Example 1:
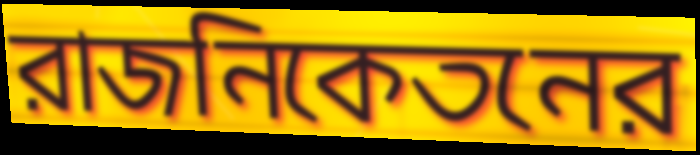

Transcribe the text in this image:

রাজনিকেতনের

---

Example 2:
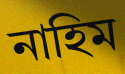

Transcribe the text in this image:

নাহিম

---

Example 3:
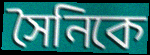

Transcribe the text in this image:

সৈনিকে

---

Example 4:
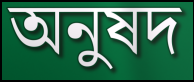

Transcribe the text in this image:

অনুষদ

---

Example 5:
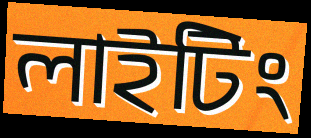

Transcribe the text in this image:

লাইটিং